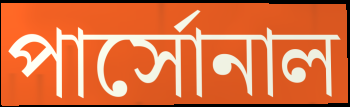
পার্সোনাল